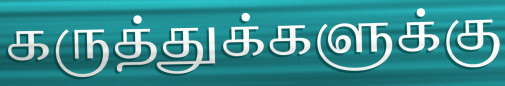
கருத்துக்களுக்கு